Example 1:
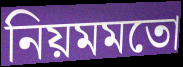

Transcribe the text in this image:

নিয়মমতো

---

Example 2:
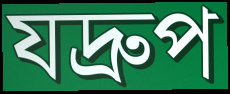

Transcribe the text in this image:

যদ্রুপ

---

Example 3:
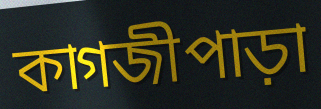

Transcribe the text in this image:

কাগজীপাড়া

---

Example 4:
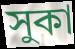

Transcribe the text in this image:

সুকা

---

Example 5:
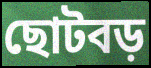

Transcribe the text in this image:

ছোটবড়